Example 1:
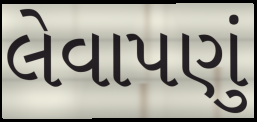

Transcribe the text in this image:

લેવાપણું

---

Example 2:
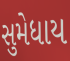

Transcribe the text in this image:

સુમેધાય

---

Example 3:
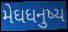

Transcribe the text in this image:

મેઘધનુષ્ય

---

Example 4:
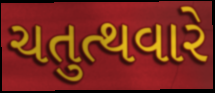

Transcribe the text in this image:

ચતુત્થવારે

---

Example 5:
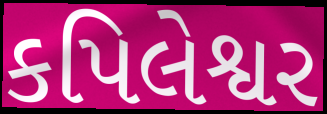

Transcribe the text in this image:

કપિલેશ્વર